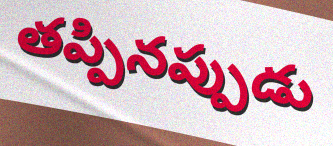
తప్పినప్పుడు